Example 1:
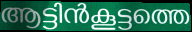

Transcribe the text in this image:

ആട്ടിൻകൂട്ടത്തെ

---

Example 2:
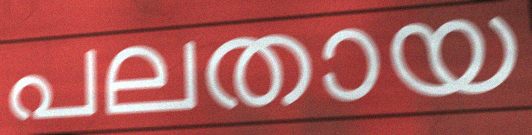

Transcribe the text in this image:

പലതായ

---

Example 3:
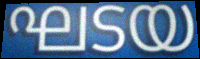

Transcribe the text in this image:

ഘടയ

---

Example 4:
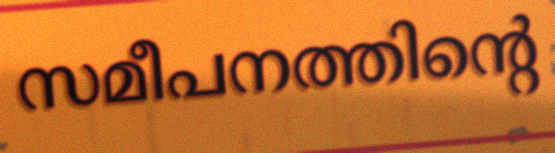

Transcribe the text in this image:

സമീപനത്തിന്റെ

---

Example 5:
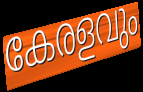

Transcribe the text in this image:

കേരളവും